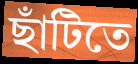
ছাঁটিতে